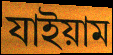
যাইয়াম